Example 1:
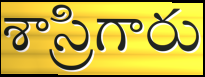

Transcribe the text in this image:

శాస్రిగారు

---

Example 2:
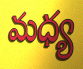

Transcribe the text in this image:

మధ్య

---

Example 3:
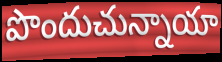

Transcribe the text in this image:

పొందుచున్నాయా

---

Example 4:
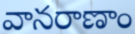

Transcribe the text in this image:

వానరాణాం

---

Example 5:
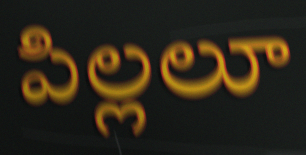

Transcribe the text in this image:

పిల్లలూ